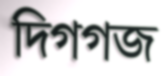
দিগগজ